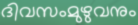
ദിവസംമുഴുവനും